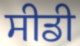
ਸੀਡੀ